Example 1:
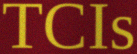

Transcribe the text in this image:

TCIs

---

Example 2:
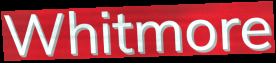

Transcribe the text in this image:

Whitmore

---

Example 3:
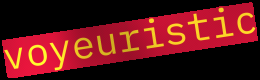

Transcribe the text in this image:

voyeuristic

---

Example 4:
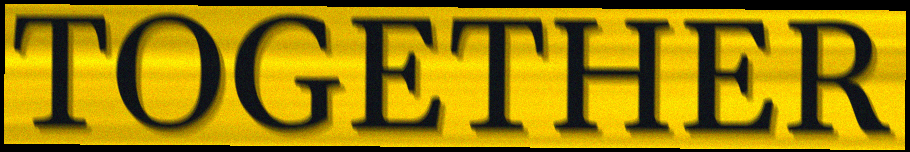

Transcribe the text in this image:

TOGETHER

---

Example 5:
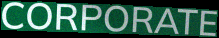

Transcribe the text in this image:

CORPORATE